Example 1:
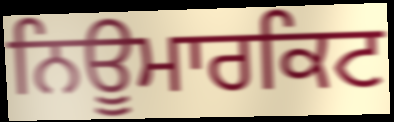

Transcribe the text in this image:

ਨਿਊਮਾਰਕਿਟ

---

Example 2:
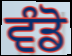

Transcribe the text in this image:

ਵੰਡੋ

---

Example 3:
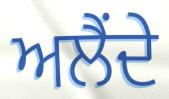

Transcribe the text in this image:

ਅਲੈਂਦੇ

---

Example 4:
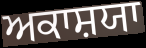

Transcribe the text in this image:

ਅਕਾਸ਼ਯਾ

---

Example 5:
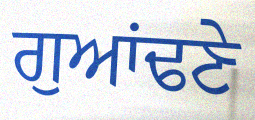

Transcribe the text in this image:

ਗੁਆਂਢਣੇ